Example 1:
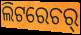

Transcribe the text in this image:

ଲିଟରେଚର୍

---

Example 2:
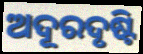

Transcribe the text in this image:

ଅଦୂରଦୃଷ୍ଟି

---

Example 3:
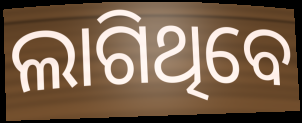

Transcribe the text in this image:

ଲାଗିଥିବେ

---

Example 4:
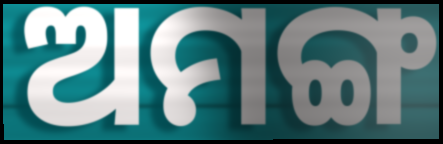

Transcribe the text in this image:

ଅମଙ୍ଗ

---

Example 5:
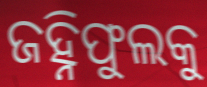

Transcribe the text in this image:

ଜହ୍ନିଫୁଲକୁ